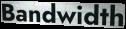
Bandwidth